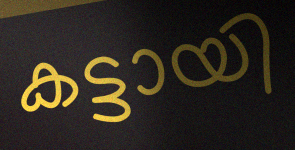
കട്ടായി